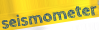
seismometer